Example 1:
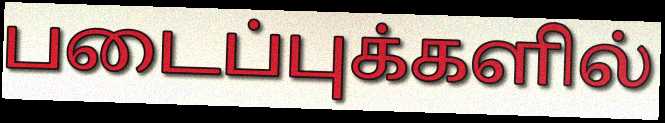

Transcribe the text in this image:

படைப்புக்களில்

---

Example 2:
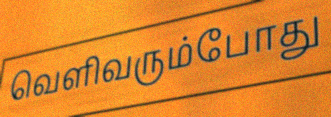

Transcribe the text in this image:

வெளிவரும்போது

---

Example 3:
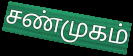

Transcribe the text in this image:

சண்முகம்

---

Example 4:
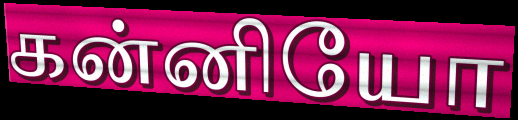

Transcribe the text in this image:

கன்னியோ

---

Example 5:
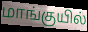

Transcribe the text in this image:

மாங்குயில்